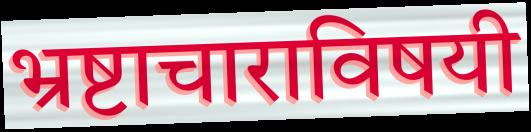
भ्रष्टाचाराविषयी